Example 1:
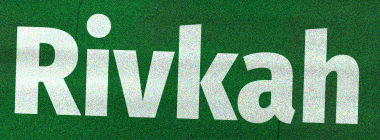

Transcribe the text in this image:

Rivkah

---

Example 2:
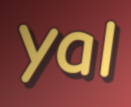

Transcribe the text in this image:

yal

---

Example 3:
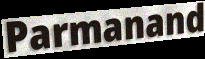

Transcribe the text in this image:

Parmanand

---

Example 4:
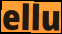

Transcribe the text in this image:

ellu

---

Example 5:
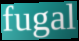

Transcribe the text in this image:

fugal